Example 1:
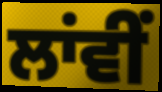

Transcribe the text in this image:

ਲਾਂਵੀਂ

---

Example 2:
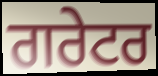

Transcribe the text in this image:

ਗਰੇਟਰ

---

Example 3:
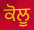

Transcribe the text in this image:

ਕੋਲੂ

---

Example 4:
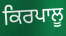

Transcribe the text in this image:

ਕਿਰਪਾਲੂ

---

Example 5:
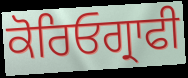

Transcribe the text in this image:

ਕੋਰਿਓਗ੍ਰਾਫੀ